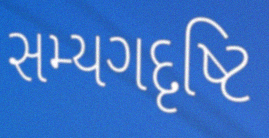
સમ્યગદૃષ્ટિ